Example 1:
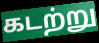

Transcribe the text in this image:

கடற்று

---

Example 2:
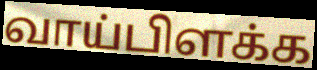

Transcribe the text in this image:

வாய்பிளக்க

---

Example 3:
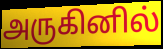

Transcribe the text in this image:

அருகினில்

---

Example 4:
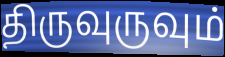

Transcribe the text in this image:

திருவுருவும்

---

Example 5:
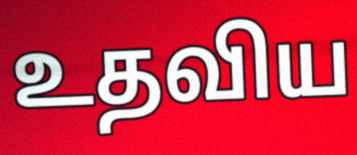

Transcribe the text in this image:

உதவிய